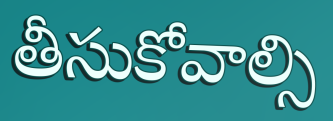
తీసుకోవాల్సి